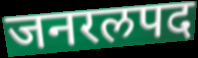
जनरलपद